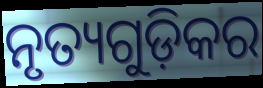
ନୃତ୍ୟଗୁଡ଼ିକର